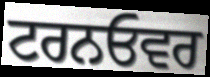
ਟਰਨਓਵਰ